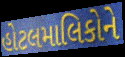
હોટલમાલિકોને